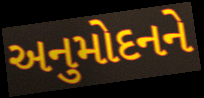
અનુમોદનને